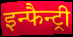
इन्फैन्ट्री